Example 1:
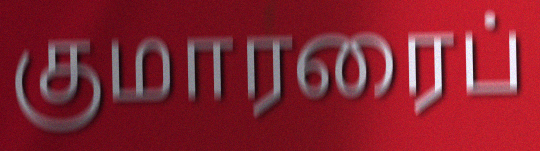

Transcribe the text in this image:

குமாரரைப்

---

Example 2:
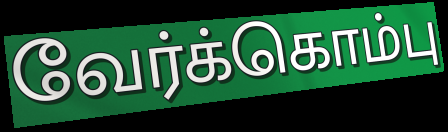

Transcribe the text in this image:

வேர்க்கொம்பு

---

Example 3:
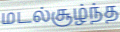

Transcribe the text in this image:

மடல்சூழ்ந்த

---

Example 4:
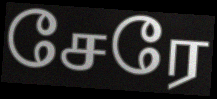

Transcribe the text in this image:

சேரே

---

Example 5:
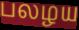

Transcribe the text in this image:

பலழய